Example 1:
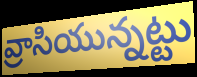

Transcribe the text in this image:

వ్రాసియున్నట్టు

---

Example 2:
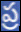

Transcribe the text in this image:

ప్ర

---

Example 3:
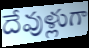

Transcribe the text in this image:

దేవుళ్లుగా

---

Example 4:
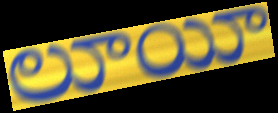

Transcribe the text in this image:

లూయీ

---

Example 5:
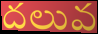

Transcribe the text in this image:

దలువ